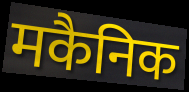
मकैनिक